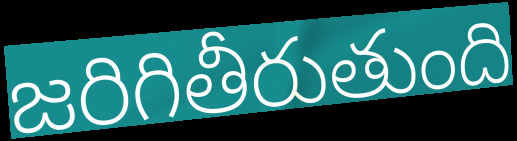
జరిగితీరుతుంది